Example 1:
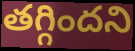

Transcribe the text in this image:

తగ్గిందని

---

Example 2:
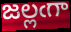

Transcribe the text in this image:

జల్లఁగా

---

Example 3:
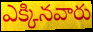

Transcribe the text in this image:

ఎక్కినవారు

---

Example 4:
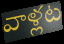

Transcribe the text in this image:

వాళ్లట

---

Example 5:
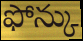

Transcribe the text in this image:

ఫోన్కు